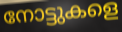
നോട്ടുകളെ